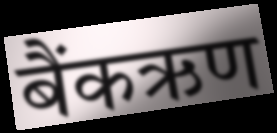
बैंकऋण